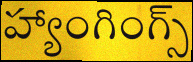
హ్యాంగింగ్స్